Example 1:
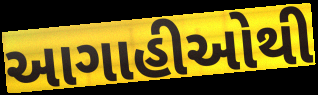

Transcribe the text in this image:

આગાહીઓથી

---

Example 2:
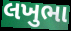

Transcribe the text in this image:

લખુભા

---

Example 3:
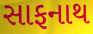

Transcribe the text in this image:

સાફનાથ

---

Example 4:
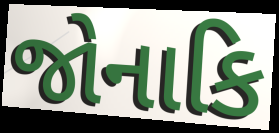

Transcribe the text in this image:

જોનાકિ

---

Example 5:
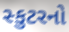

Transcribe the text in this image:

સ્કુટરનો